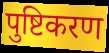
पुष्टिकरण